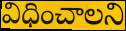
విధించాలని